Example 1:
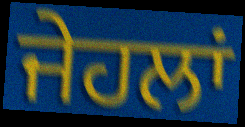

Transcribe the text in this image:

ਜੇਹਲਾਂ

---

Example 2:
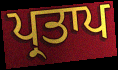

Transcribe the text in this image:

ਪ੍ਰਤਾਪ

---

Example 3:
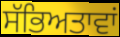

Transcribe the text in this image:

ਸੱਭਿਅਤਾਵਾਂ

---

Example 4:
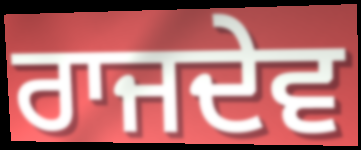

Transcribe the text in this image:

ਰਾਜਦੇਵ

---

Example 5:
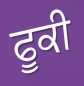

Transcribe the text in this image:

ਫੂਕੀ